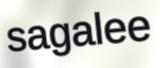
sagalee